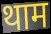
थाम